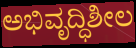
ಅಭಿವೃದ್ಧಿಶೀಲ